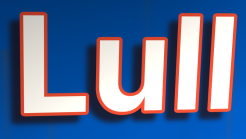
Lull